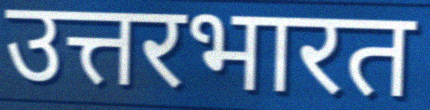
उत्तरभारत